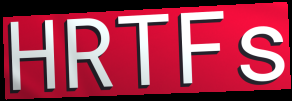
HRTFs